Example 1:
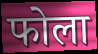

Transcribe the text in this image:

फोला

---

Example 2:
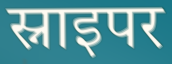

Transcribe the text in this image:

स्नाइपर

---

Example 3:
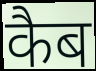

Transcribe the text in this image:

कैब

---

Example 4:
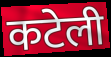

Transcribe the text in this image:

कटेली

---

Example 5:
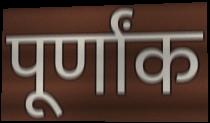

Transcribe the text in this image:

पूर्णांक